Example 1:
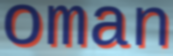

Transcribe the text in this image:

oman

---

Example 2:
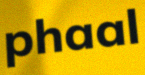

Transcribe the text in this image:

phaal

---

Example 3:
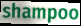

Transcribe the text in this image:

shampoo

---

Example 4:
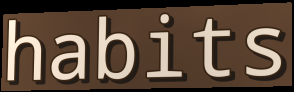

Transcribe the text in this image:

habits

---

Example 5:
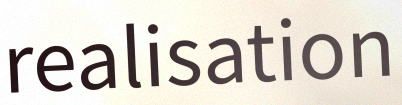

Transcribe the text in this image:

realisation